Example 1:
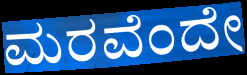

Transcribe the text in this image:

ಮರವೆಂದೇ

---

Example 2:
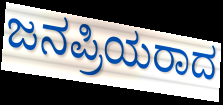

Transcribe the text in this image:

ಜನಪ್ರಿಯರಾದ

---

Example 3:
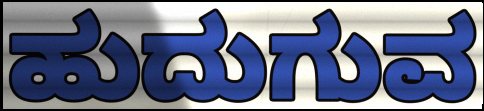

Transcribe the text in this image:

ಹುದುಗುವ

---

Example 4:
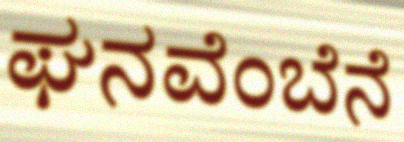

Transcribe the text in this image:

ಘನವೆಂಬೆನೆ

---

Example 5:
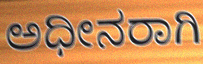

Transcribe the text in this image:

ಅಧೀನರಾಗಿ